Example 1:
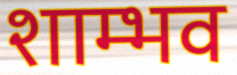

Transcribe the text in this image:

शाम्भव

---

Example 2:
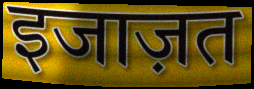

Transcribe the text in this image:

इजाज़त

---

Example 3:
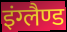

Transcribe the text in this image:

इंग्‍लैण्‍ड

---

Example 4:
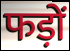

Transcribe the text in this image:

फड़ों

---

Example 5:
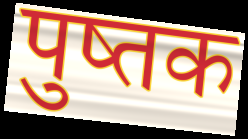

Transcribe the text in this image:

पुष्तक